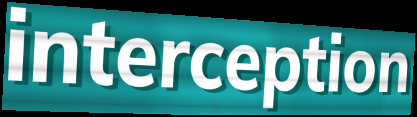
interception